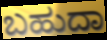
ಬಹುದಾ